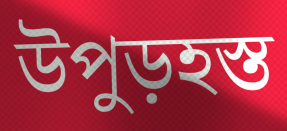
উপুড়হস্ত